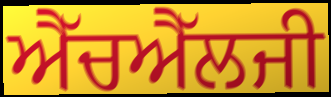
ਐੱਚਐੱਲਜੀ